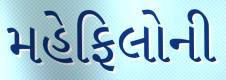
મહેફિલોની